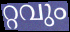
റ്റവും